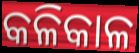
କଳିକାଳ